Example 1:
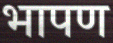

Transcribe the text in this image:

भापण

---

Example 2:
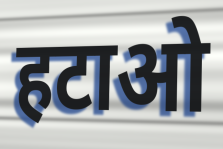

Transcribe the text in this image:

हटाओ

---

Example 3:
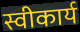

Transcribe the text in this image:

स्‍वीकार्य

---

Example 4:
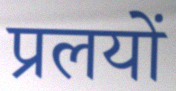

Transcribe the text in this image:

प्रलयों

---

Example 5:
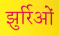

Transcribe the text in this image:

झुर्रिओं